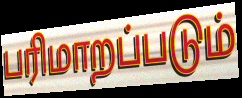
பரிமாறப்படும்